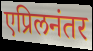
एप्रिलनंतर